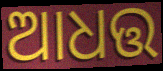
ଆଧତ୍ତ